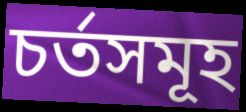
চৰ্তসমূহ